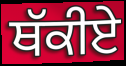
ਥੱਕੀਏ